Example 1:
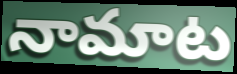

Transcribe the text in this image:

నామాట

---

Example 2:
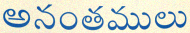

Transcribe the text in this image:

అనంతములు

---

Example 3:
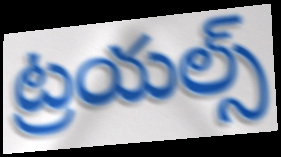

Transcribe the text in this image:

ట్రయల్స్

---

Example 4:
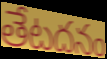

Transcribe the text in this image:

తేటదనం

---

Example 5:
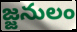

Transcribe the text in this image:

జ్జనులం